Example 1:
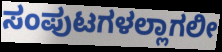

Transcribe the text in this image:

ಸಂಪುಟಗಳಲ್ಲಾಗಲೀ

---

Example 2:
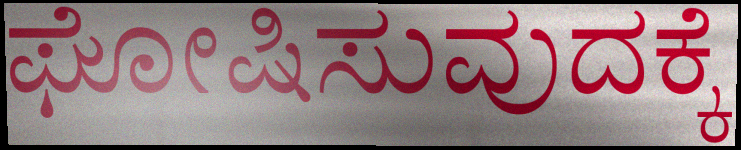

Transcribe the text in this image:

ಘೋಷಿಸುವುದಕ್ಕೆ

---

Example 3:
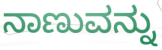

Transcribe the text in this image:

ನಾಣುವನ್ನು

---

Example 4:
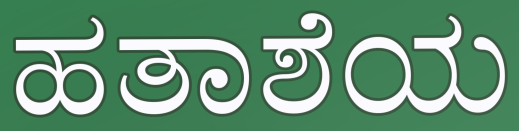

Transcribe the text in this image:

ಹತಾಶೆಯ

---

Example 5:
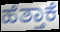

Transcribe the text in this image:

ಹೆತ್ತಾಕೆ